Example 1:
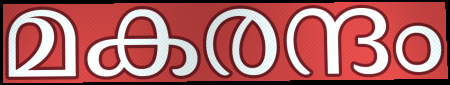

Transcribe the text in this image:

മകരന്ദം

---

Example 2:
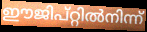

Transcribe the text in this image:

ഈജിപ്റ്റിൽനിന്ന്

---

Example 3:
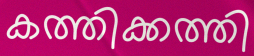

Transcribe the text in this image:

കത്തിക്കത്തി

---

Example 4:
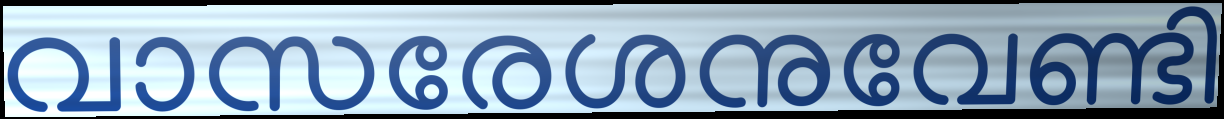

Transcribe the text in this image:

വാസരേശനുവേണ്ടി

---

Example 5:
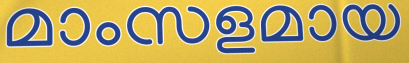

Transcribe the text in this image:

മാംസളമായ